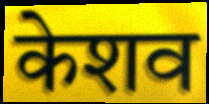
केशव